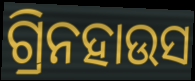
ଗ୍ରିନହାଉସ